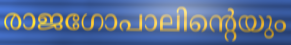
രാജഗോപാലിന്റെയും